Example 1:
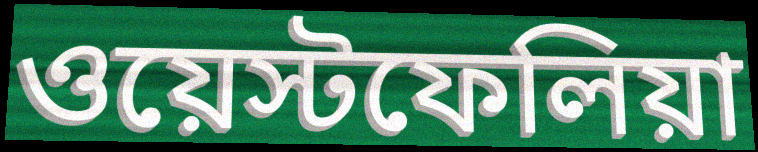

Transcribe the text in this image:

ওয়েস্টফেলিয়া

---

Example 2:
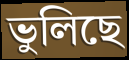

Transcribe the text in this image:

ভুলিছে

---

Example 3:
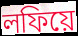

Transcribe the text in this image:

লফিয়ে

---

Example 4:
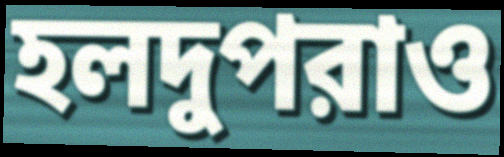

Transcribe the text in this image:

হলদুপরাও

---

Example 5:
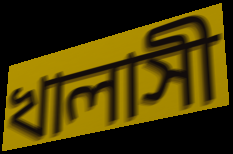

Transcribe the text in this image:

খালাসী